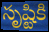
సృష్టికి